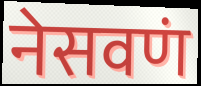
नेसवणं